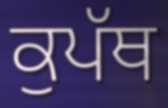
ਕੁਪੱਥ